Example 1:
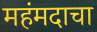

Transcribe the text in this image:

महंमदाचा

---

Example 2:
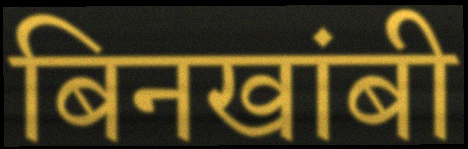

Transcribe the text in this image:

बिनखांबी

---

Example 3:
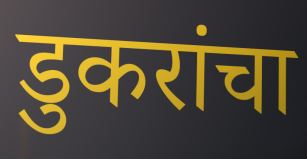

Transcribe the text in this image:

डुकरांचा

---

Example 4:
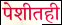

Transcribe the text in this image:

पेशीतही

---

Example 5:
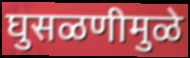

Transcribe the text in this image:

घुसळणीमुळे